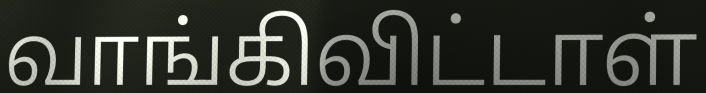
வாங்கிவிட்டாள்